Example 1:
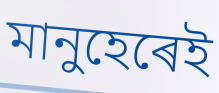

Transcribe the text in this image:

মানুহেৰেই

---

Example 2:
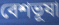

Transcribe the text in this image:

বেশভূষা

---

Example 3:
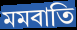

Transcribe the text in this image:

মমবাতি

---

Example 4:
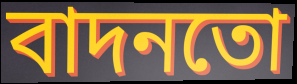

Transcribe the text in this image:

বাদনতো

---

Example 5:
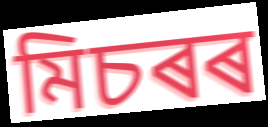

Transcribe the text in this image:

মিচৰৰ